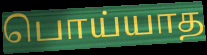
பொய்யாத